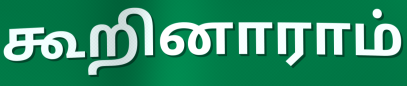
கூறினாராம்